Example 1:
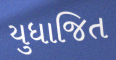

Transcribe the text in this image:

યુધાજિત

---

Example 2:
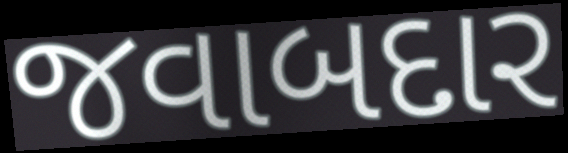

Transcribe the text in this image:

જવાબદાર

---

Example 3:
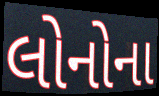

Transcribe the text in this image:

લોનોના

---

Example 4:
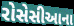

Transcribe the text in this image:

રોસેસીઆના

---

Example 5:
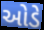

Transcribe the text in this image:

ઓડે